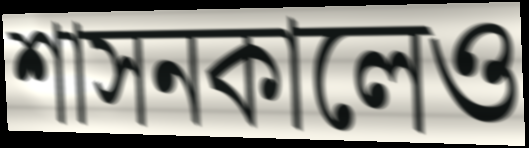
শাসনকালেও